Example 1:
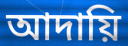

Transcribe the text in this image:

আদায়ি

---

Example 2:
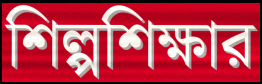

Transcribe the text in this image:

শিল্পশিক্ষার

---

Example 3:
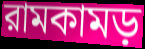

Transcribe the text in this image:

রামকামড়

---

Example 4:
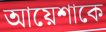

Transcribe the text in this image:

আয়েশাকে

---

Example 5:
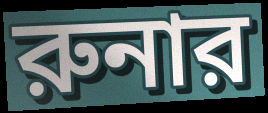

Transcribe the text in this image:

রুনার